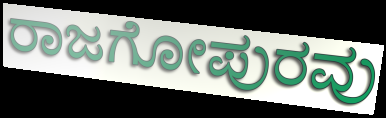
ರಾಜಗೋಪುರವು